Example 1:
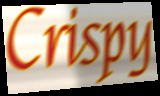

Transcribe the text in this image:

Crispy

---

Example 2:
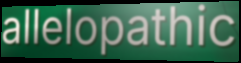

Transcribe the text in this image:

allelopathic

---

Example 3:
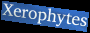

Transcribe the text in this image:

Xerophytes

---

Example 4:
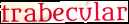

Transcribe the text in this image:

trabecular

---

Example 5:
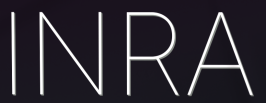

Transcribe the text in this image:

INRA